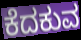
ಕೆದಕುವ